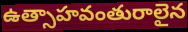
ఉత్సాహవంతురాలైన